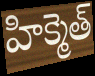
హిక్మెత్